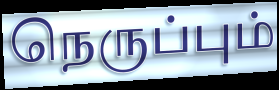
நெருப்பும்